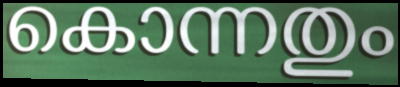
കൊന്നതും